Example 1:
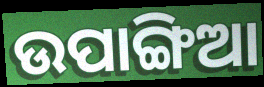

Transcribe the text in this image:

ଉପାଙ୍ଗିଆ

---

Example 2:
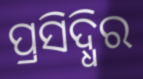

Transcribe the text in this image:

ପ୍ରସିଦ୍ଧିର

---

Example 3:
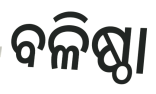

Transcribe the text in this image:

ବଳିଷ୍ଠା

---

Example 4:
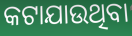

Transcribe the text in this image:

କଟାଯାଉଥିବା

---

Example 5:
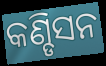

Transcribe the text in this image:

କଣ୍ଡିସନ